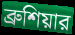
ব্রুশিয়ার